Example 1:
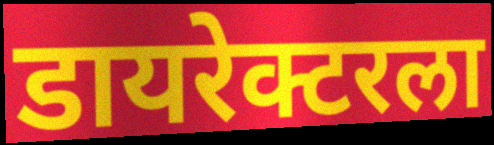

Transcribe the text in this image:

डायरेक्टरला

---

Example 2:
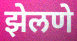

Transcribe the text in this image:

झेलणे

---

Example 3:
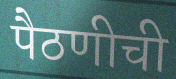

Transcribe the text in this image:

पैठणीची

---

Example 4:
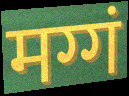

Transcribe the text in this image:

मग्गं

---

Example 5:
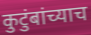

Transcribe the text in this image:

कुटुंबांच्याच